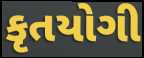
કૃતયોગી